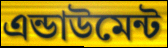
এন্ডাউমেন্ট